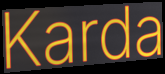
Karda